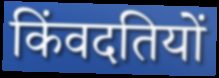
किंवदतियों